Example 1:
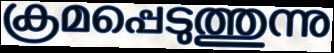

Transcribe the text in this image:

ക്രമപ്പെടുത്തുന്നു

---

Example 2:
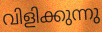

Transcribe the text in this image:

വിളിക്കുന്നു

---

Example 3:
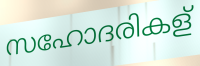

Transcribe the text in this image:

സഹോദരികള്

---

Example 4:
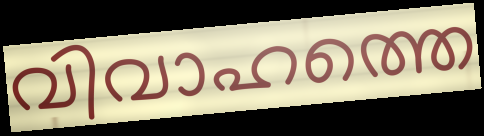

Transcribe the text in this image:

വിവാഹത്തെ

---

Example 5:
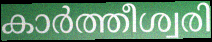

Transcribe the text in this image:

കാർത്തീശ്വരി